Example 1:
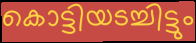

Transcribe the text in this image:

കൊട്ടിയടച്ചിട്ടും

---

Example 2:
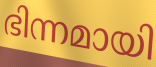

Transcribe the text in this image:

ഭിന്നമായി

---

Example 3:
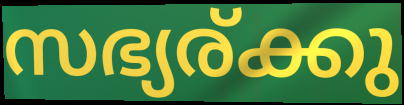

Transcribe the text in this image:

സഭ്യര്ക്കു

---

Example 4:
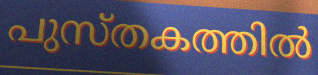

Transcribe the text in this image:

പുസ്തകത്തിൽ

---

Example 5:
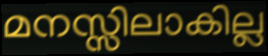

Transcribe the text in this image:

മനസ്സിലാകില്ല